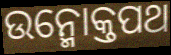
ଉନ୍ମୋକ୍ତପଥ